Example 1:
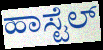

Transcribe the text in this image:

ಹಾಸ್ಟೆಲ್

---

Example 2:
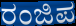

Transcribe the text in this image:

ರಂಜಿಪ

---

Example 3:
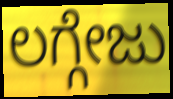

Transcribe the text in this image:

ಲಗ್ಗೇಜು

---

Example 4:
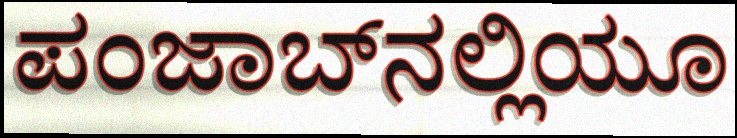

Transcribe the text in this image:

ಪಂಜಾಬ್‌ನಲ್ಲಿಯೂ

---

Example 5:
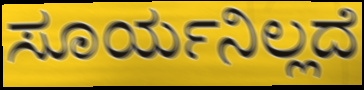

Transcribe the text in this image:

ಸೂರ್ಯನಿಲ್ಲದೆ